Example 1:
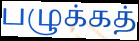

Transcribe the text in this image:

பழுக்கத்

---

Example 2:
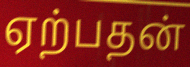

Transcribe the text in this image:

ஏற்பதன்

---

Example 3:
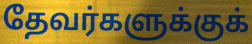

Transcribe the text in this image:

தேவர்களுக்குக்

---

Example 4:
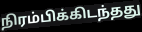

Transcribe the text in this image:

நிரம்பிக்கிடந்தது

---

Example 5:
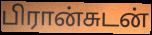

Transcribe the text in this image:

பிரான்சுடன்